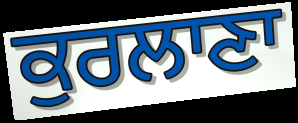
ਕੁਰਲਾਣਾ